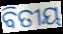
ବିତୀୟ